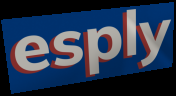
esply